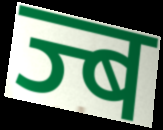
ज्ब